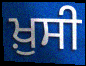
ਖ਼ੁਸੀ